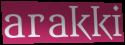
arakki